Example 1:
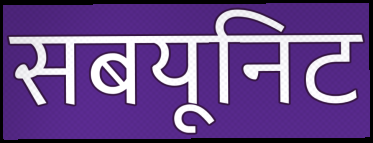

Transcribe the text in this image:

सबयूनिट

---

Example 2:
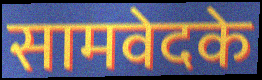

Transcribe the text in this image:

सामवेदके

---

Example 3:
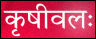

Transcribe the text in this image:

कृषीवलः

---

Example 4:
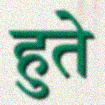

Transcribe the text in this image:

हुते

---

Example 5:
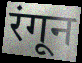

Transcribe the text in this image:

रंगून